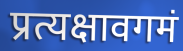
प्रत्यक्षावगमं